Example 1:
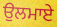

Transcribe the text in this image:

ਉਲਮਾਏ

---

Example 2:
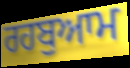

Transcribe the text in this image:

ਰਹਬੁਆਮ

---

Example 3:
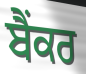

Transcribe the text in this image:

ਬੈਂਕਰ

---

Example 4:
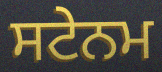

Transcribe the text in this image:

ਸਟੇਨਮ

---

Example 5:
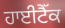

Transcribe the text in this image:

ਹਾਈਟੈੱਕ